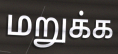
மறுக்க